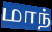
மாந்